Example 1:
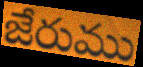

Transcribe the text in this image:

జేరుము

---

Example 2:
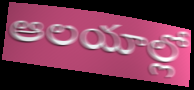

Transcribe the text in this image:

ఆలయాల్లో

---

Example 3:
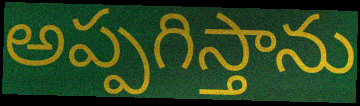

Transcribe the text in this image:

అప్పగిస్తాను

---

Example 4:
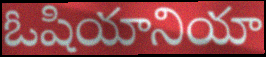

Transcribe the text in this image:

ఓషియానియా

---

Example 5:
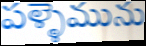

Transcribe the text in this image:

పళ్ళెమును